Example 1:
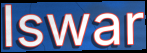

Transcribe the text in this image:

Iswar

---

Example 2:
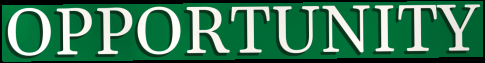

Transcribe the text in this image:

OPPORTUNITY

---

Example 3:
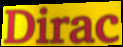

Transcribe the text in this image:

Dirac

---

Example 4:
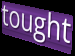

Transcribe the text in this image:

tought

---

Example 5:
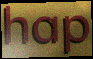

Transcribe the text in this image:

hap